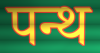
पन्थ